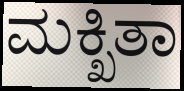
ಮಕ್ಖಿತಾ